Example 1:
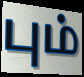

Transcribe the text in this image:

பும்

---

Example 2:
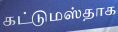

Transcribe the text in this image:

கட்டுமஸ்தாக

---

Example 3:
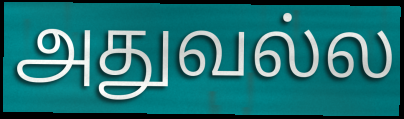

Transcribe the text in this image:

அதுவல்ல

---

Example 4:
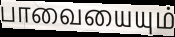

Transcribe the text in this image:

பாவையையும்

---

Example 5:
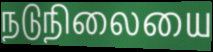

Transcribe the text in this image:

நடுநிலையை